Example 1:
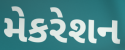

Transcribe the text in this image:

મેકરેશન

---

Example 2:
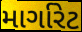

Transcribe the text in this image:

માર્ગારેટ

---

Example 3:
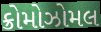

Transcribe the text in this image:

ક્રોમોઝોમલ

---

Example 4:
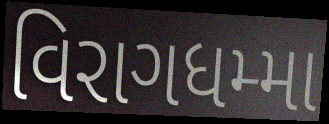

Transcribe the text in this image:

વિરાગધમ્મા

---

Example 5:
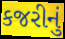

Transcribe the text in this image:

કજરીનું